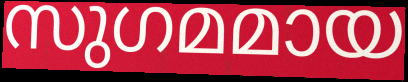
സുഗമമായ